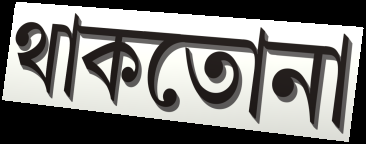
থাকতোনা